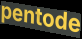
pentode